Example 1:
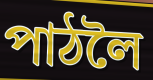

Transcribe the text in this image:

পাঠলৈ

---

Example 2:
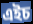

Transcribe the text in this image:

এইচ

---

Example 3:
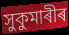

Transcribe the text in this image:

সুকুমাৰীৰ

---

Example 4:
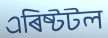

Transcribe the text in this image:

এৰিষ্টটল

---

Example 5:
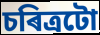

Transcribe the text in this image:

চৰিত্ৰটো